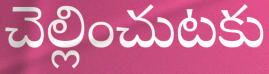
చెల్లించుటకు